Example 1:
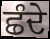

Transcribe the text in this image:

ਛੰਦੇ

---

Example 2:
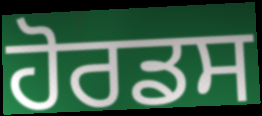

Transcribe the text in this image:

ਹੋਰਡਸ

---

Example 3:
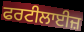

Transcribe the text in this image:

ਫਰਟੀਲਾਈਜ਼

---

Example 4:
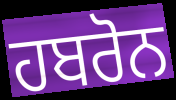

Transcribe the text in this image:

ਹਬਰੋਨ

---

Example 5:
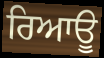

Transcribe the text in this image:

ਰਿਆਊ